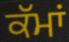
ਕੱਮਾਂ